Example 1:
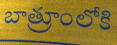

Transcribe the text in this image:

బాత్రూంలోకి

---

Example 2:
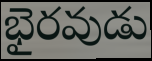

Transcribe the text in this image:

భైరవుడు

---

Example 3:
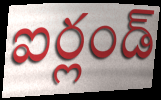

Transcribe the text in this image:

ఐర్లండ్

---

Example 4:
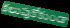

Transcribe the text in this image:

కలుపుకోకుండా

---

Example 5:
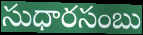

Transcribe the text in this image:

సుధారసంబు